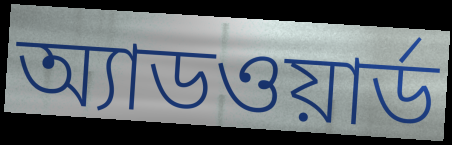
অ্যাডওয়ার্ড